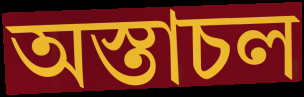
অস্তাচল